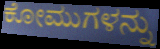
ಕೋಮುಗಳನ್ನು